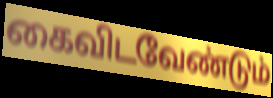
கைவிடவேண்டும்